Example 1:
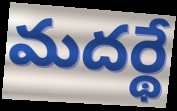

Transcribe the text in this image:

మదర్థే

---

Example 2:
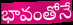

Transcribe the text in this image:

భావంతోనే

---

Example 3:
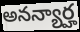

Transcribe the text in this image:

అనన్యార్హ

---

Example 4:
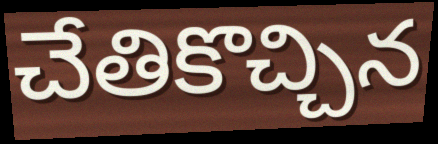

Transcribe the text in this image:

చేతికొచ్చిన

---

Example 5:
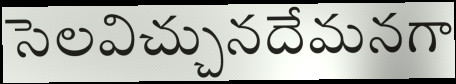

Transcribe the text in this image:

సెలవిచ్చునదేమనగా